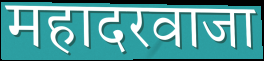
महादरवाजा